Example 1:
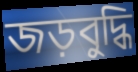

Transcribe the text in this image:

জড়বুদ্ধি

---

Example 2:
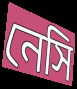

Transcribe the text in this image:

নেসি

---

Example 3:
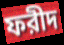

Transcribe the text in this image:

ফরীদ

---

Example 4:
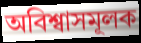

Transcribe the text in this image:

অবিশ্বাসমূলক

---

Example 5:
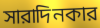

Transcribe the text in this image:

সারাদিনকার